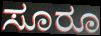
ಸೂರೂ